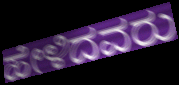
ಹೇಳಿದವರು